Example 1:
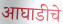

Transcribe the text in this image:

आघाडीचे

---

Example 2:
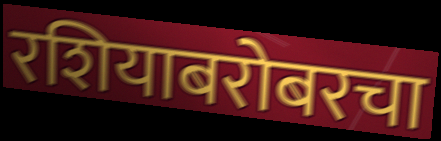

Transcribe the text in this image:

रशियाबरोबरचा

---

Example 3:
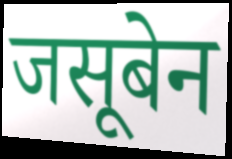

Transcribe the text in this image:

जसूबेन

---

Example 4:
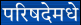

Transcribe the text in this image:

परिषदेमधे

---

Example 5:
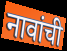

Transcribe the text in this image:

नावांची